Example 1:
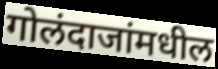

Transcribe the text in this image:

गोलंदाजांमधील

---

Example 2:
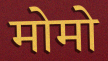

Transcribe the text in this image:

मोमो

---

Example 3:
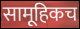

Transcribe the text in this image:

सामूहिकच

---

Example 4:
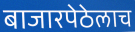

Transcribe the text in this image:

बाजारपेठेलाच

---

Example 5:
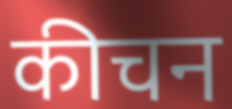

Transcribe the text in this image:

कीचन